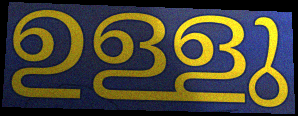
ഉള്ളു